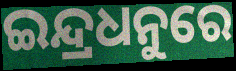
ଇନ୍ଦ୍ରଧନୁରେ